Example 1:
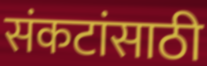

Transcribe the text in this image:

संकटांसाठी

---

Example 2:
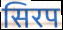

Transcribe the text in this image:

सिरप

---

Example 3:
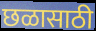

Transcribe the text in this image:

छळासाठी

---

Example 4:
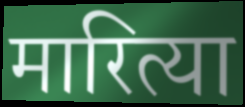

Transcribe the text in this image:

मारित्या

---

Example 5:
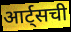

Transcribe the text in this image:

आर्ट्सची